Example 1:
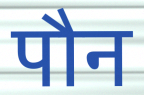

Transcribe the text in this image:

पौन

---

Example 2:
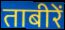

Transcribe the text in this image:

ताबीरें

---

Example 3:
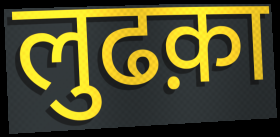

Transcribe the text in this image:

लुढक़ा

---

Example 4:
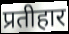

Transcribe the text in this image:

प्रतीहार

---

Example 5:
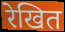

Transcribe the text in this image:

रेखित